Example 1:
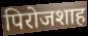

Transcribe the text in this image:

पिरोजशाह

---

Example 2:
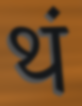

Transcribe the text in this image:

थं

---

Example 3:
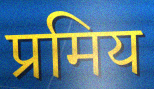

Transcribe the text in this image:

प्रमिय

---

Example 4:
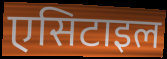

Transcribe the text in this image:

एसिटाइल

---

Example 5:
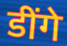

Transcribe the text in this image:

डींगे